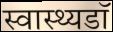
स्वास्थ्यडॉ